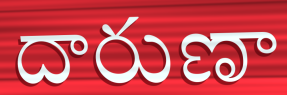
దారుణా